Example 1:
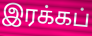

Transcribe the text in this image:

இரக்கப்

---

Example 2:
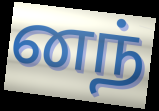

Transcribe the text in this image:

னந்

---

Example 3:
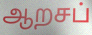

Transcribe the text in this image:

ஆறசப்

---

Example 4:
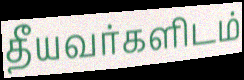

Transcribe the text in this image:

தீயவர்களிடம்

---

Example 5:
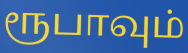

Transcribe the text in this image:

ரூபாவும்